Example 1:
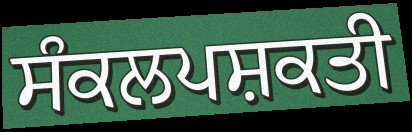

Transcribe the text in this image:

ਸੰਕਲਪਸ਼ਕਤੀ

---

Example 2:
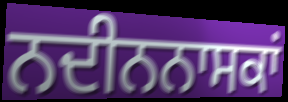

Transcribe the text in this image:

ਨਦੀਨਨਾਸਕਾਂ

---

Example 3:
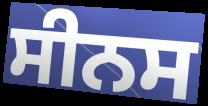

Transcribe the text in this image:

ਸੀਨਸ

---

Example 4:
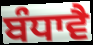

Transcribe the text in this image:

ਬੰਧਾਵੈ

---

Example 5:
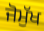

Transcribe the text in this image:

ਜੋਮੁੱਖ